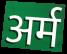
अर्म